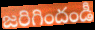
జరిగిందండీ